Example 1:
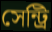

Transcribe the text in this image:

সেন্ট্রি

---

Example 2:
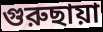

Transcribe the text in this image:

গুরুছায়া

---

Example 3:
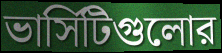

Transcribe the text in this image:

ভার্সিটিগুলোর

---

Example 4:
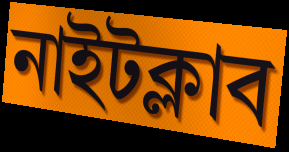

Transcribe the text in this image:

নাইটক্লাব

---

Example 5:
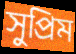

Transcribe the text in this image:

সুপ্রিম